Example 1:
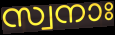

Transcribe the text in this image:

സ്വനാഃ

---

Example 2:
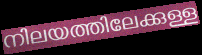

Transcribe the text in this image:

നിലയത്തിലേക്കുള്ള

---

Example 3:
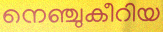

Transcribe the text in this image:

നെഞ്ചുകീറിയ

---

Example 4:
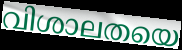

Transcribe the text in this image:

വിശാലതയെ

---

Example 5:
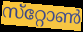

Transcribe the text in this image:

സ്‌റ്റോൺ